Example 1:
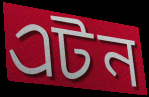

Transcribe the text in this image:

এটন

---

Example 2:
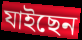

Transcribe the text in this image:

যাইছেন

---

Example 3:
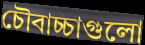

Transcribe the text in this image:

চৌবাচ্চাগুলো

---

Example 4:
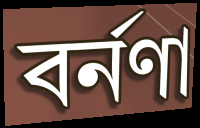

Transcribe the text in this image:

বর্নণা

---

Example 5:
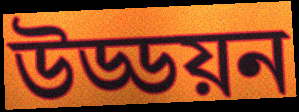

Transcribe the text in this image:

উড্ডয়ন